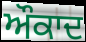
ਔਕਾਦ